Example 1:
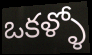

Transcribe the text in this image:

ఒకళ్ళో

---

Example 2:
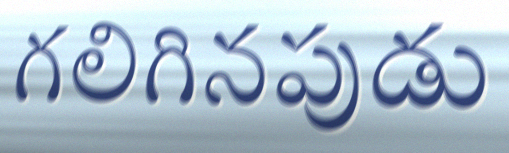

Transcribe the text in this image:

గలిగినపుడు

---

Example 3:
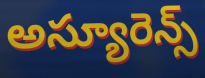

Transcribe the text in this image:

అస్యూరెన్స్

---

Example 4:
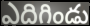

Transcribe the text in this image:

ఎదిగిండు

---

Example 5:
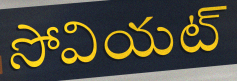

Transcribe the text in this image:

సోవియట్